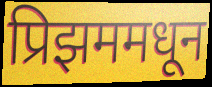
प्रिझममधून